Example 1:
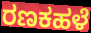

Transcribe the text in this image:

ರಣಕಹಳೆ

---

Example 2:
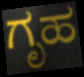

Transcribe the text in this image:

ಗೃಹ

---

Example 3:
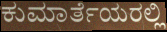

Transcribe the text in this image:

ಕುಮಾರ್ತೆಯರಲ್ಲಿ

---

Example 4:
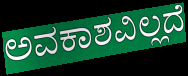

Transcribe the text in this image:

ಅವಕಾಶವಿಲ್ಲದೆ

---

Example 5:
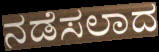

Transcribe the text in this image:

ನಡೆಸಲಾದ